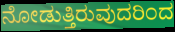
ನೋಡುತ್ತಿರುವುದರಿಂದ